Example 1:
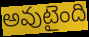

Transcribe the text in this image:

అవుటైంది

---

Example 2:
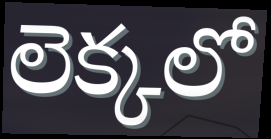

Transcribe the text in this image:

లెక్కలో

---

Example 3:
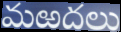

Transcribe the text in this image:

మఱదలు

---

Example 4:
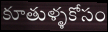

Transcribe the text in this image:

కూతుళ్ళకోసం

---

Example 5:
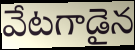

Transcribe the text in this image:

వేటగాడైన